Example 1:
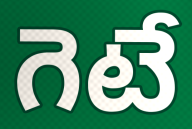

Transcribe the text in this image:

గెటే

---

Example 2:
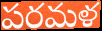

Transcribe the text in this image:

పరమళ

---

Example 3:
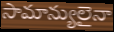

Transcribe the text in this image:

సామాన్యులైనా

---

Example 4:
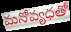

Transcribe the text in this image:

మనోవ్యధతో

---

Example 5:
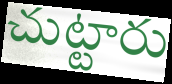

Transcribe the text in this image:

చుట్టారు